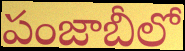
పంజాబీలో